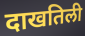
दाखतिली